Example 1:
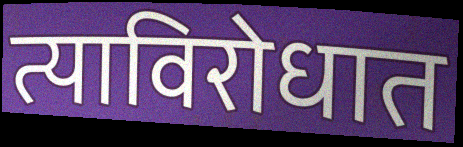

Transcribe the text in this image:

त्याविरोधात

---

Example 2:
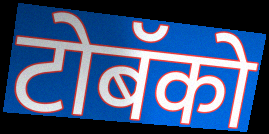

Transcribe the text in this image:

टोबॅको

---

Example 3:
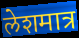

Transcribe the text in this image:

लेशमात्र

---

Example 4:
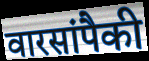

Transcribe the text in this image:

वारसांपैकी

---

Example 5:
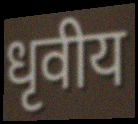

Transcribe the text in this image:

धृवीय